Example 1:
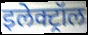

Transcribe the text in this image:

इलेक्ट्रॉल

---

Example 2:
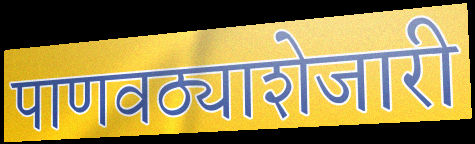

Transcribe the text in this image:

पाणवठ्याशेजारी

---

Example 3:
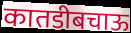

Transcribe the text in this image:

कातडीबचाऊ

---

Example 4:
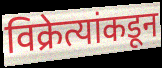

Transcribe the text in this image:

विक्रेत्यांकडून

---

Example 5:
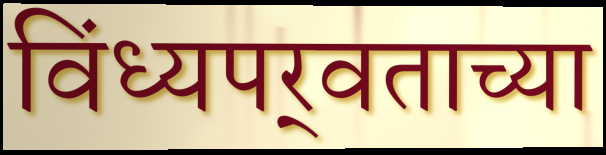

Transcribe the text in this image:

विंध्यपर्वताच्या